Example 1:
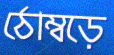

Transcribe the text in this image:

ঠোম্বড়ে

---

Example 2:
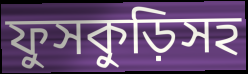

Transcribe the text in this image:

ফুসকুড়িসহ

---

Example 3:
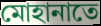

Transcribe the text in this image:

মোহানাতে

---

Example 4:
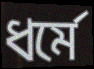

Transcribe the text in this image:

ধর্মে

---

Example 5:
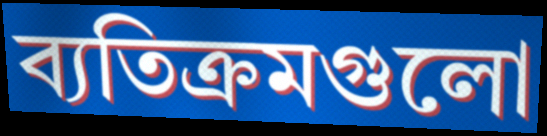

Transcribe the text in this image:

ব্যতিক্রমগুলো